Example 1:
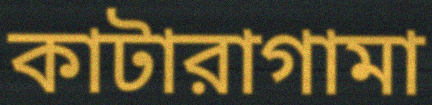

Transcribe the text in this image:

কাটারাগামা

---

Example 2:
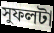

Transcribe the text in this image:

সুফলটা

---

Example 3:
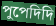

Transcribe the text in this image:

পুপেদিদি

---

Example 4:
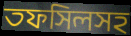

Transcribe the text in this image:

তফসিলসহ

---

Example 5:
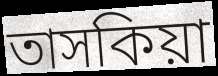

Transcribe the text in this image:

তাসকিয়া